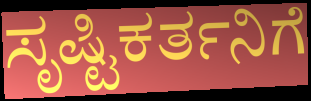
ಸೃಷ್ಟಿಕರ್ತನಿಗೆ